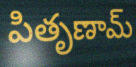
పితృణామ్